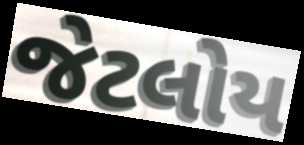
જેટલોય